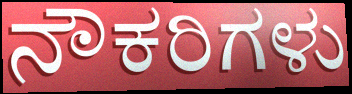
ನೌಕರಿಗಳು